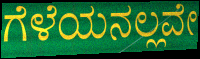
ಗೆಳೆಯನಲ್ಲವೇ